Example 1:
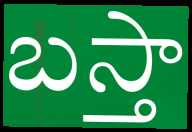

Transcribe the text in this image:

బస్తా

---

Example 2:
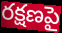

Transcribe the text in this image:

రక్షణపై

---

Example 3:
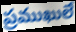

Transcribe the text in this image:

ప్రముఖులే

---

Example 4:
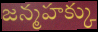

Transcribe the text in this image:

జన్మహక్కు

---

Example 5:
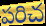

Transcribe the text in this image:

పరిచ